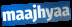
maajhyaa